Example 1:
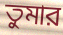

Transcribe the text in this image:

তুমার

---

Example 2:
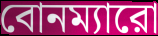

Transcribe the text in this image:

বোনম্যারো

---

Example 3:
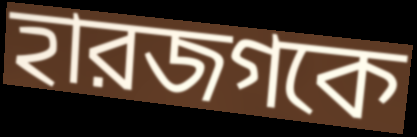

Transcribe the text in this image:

হারজগকে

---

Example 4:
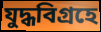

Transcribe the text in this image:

যুদ্ধবিগ্রহে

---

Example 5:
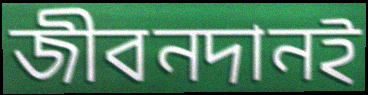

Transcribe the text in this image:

জীবনদানই